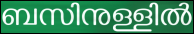
ബസിനുള്ളിൽ